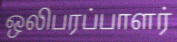
ஒலிபரப்பாளர்